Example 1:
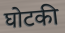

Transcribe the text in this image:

घोटकी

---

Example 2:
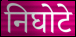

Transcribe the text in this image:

निघोटे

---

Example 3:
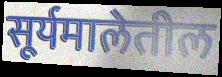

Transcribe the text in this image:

सूर्यमालेतील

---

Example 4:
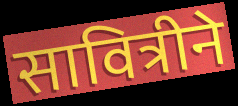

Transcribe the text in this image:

सावित्रीने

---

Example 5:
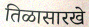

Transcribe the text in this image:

तिळासारखे